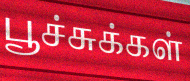
பூச்சுக்கள்